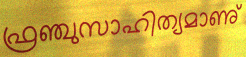
ഫ്രഞ്ചുസാഹിത്യമാണു്